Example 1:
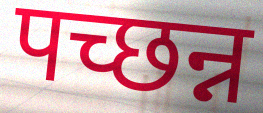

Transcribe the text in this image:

पच्छन्न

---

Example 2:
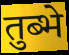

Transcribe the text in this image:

तुब्भे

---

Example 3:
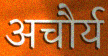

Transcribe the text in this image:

अचौर्य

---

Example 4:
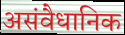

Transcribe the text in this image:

असंवैधानिक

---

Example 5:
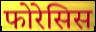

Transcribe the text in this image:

फोरेसिस